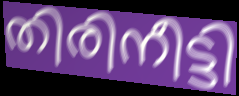
തിരിനീട്ടി